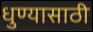
धुण्यासाठी